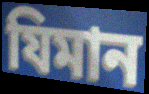
যিমান